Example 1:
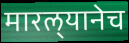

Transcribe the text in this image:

मारल्यानेच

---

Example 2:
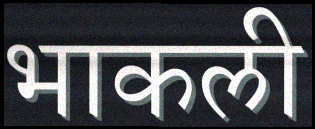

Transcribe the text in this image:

भाकली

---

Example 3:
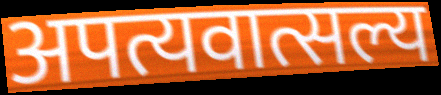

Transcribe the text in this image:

अपत्यवात्सल्य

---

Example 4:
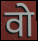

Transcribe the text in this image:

वो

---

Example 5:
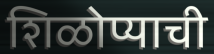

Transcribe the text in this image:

शिळोप्याची